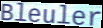
Bleuler